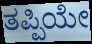
ತಪ್ಪಿಯೇ